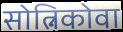
सोत्निकोवा